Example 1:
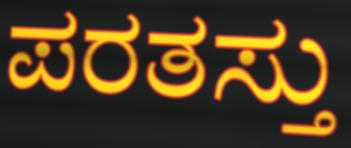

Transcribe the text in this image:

ಪರತಸ್ತು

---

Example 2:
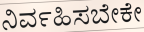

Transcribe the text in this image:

ನಿರ್ವಹಿಸಬೇಕೇ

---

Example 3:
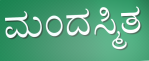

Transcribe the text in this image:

ಮಂದಸ್ಮಿತ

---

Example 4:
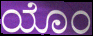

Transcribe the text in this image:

ಯೊಂ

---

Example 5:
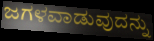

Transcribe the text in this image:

ಜಗಳವಾಡುವುದನ್ನು